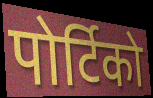
पोर्टिको